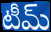
టీమ్